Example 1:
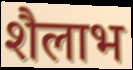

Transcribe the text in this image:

शैलाभ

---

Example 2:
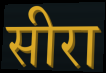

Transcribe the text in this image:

सीरा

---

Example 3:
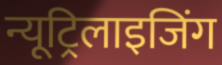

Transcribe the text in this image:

न्यूट्रिलाइजिंग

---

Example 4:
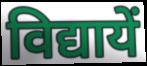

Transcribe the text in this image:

विद्यायें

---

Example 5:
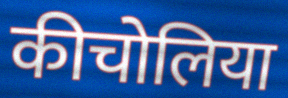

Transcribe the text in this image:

कीचोलिया